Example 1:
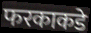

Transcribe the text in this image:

फरकाकडे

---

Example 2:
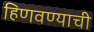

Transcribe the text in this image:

हिणवण्याची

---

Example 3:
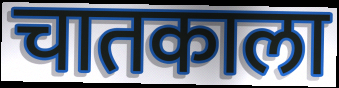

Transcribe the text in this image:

चातकाला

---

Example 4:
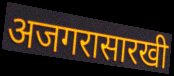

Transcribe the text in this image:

अजगरासारखी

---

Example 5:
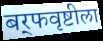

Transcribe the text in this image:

बर्फवृष्टीला